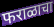
फराळाचा